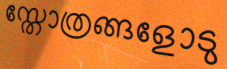
സ്തോത്രങ്ങളോടു